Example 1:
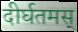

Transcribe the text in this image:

दीर्घतमस्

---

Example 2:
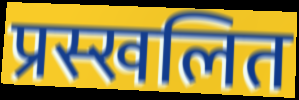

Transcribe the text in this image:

प्रस्खलित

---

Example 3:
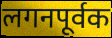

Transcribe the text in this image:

लगनपूर्वक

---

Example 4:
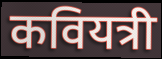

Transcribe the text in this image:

कवियत्री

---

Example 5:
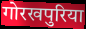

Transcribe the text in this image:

गोरखपुरिया